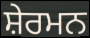
ਸ਼ੇਰਮਨ